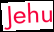
Jehu